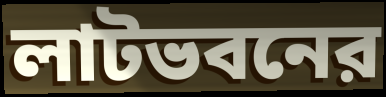
লাটভবনের